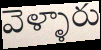
వెళ్ళారు